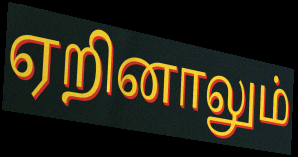
ஏறினாலும்